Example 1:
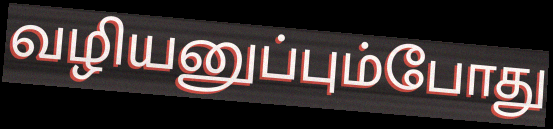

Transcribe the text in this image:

வழியனுப்பும்போது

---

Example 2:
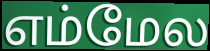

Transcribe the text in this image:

எம்மேல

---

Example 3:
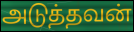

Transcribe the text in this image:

அடுத்தவன்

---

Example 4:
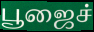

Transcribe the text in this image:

பூஜைச்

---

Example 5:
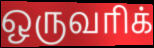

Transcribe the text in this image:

ஒருவரிக்